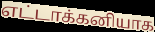
எட்டாக்கனியாக